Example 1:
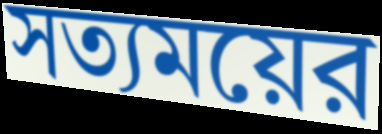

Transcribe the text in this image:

সত্যময়ের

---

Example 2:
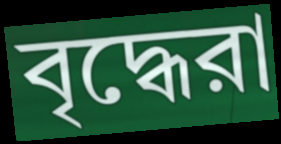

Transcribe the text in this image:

বৃদ্ধেরা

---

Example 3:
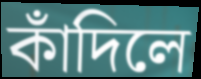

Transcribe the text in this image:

কাঁদিলে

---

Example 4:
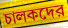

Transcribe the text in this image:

চালকদের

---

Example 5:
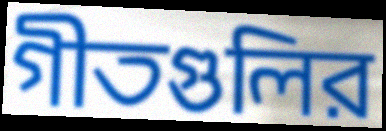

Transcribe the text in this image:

গীতগুলির